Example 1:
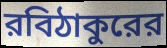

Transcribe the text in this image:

রবিঠাকুরের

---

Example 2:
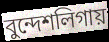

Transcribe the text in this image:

বুন্দেশলিগায়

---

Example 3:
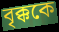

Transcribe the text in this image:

বৃক্ককে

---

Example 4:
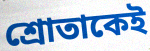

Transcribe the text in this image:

শ্রোতাকেই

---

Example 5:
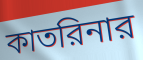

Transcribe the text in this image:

কাতরিনার